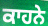
ਕਾਹਨੇ